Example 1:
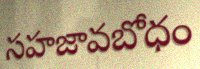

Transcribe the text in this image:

సహజావబోధం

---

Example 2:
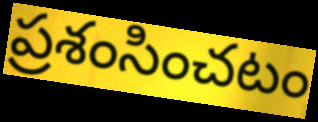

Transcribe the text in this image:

ప్రశంసించటం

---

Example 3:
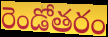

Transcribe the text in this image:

రెండోతరం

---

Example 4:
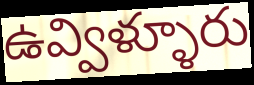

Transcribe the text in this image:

ఉవ్విళ్ళూరు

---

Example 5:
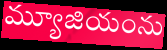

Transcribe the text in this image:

మ్యూజియంను